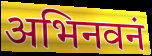
अभिनवनं